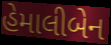
હેમાલીબેન